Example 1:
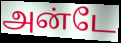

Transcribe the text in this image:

அன்டே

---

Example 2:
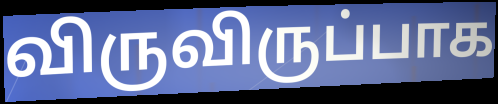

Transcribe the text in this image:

விருவிருப்பாக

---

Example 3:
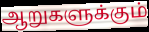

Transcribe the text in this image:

ஆறுகளுக்கும்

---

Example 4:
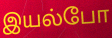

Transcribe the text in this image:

இயல்போ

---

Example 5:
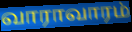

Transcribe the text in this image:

வாராவாரம்